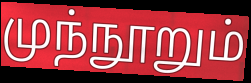
முந்நூறும்